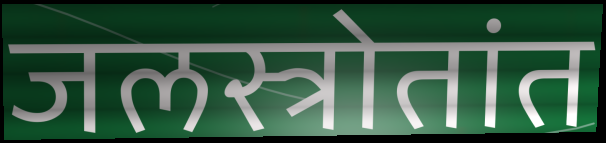
जलस्त्रोतांत